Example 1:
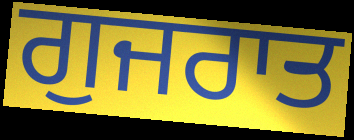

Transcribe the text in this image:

ਗੁਜਰਾਤ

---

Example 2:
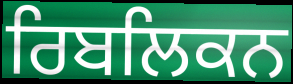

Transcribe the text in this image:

ਰਿਬਲਿਕਨ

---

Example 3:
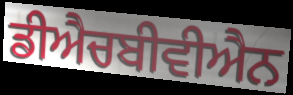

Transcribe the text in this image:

ਡੀਐਚਬੀਵੀਐਨ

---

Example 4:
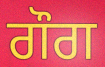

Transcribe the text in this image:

ਗੌਗ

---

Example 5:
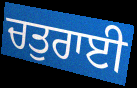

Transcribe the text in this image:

ਚਤੁਰਾਈ